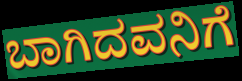
ಬಾಗಿದವನಿಗೆ